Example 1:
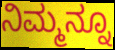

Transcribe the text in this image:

ನಿಮ್ಮನ್ನೂ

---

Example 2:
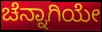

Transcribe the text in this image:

ಚೆನ್ನಾಗಿಯೇ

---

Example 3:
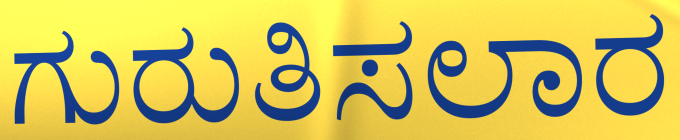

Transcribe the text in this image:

ಗುರುತಿಸಲಾರ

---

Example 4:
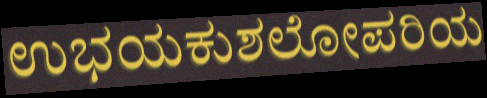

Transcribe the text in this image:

ಉಭಯಕುಶಲೋಪರಿಯ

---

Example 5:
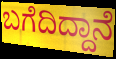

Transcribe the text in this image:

ಬಗೆದಿದ್ದಾನೆ